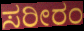
ಸರೀರಂ